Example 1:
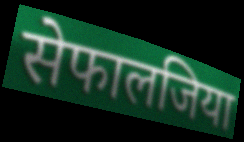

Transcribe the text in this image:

सेफालजिया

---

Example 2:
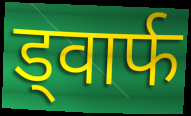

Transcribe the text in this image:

ड्वार्फ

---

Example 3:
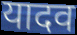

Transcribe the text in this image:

यादव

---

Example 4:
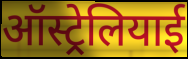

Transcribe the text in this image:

ऑस्ट्रेलियाई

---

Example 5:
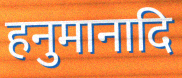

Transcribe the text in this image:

हनुमानादि